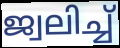
ജ്വലിച്ച്